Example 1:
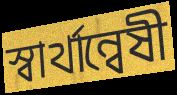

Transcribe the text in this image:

স্বার্থান্বেষী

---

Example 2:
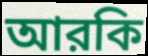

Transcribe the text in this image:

আরকি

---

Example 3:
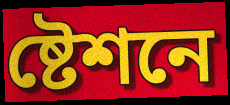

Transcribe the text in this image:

ষ্টেশনে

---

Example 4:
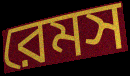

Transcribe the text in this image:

রেমস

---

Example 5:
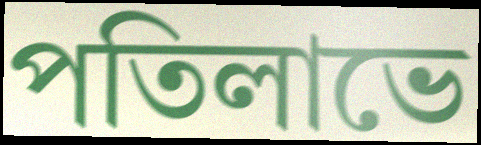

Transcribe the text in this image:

পতিলাভে